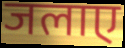
जलाए